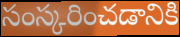
సంస్కరించడానికి